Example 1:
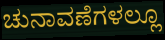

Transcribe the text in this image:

ಚುನಾವಣೆಗಳಲ್ಲೂ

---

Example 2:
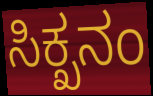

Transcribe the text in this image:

ಸಿಕ್ಖನಂ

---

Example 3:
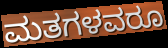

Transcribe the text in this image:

ಮತಗಳವರೂ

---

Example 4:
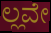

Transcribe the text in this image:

ಲ್ಲವೇ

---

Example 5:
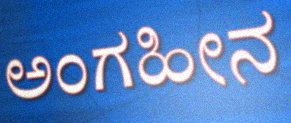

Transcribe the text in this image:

ಅಂಗಹೀನ